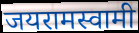
जयरामस्वामी